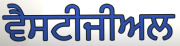
ਵੈਸਟੀਜੀਅਲ